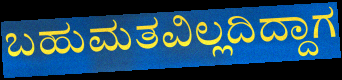
ಬಹುಮತವಿಲ್ಲದಿದ್ದಾಗ